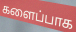
களைப்பாக